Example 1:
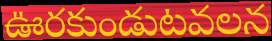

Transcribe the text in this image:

ఊరకుండుటవలన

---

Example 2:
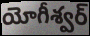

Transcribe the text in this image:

యోగీశ్వర్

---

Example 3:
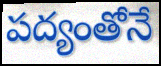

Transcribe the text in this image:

పద్యంతోనే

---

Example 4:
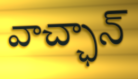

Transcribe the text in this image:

వాచ్ఛాన్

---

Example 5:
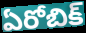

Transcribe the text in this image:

ఏరోబిక్